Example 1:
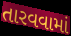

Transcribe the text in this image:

તારવવામાં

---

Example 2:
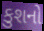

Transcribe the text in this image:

કુશનો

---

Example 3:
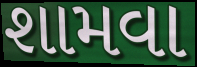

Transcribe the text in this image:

શામવા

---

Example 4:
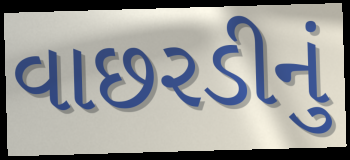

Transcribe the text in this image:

વાછરડીનું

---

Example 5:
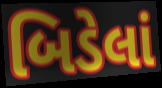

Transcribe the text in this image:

બિડેલાં